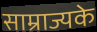
साम्राज्यके